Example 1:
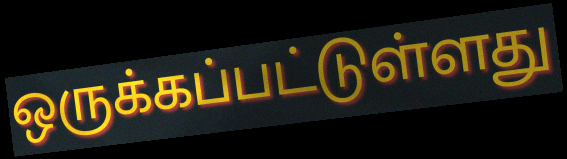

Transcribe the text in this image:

ஒருக்கப்பட்டுள்ளது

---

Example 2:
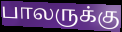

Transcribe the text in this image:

பாலருக்கு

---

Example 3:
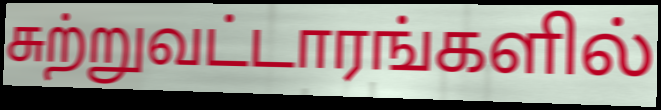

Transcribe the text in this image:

சுற்றுவட்டாரங்களில்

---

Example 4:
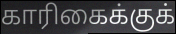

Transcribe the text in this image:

காரிகைக்குக்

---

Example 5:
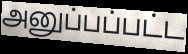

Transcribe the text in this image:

அனுப்பப்பட்ட